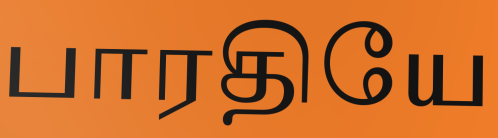
பாரதியே